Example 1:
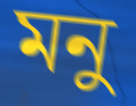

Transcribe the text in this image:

মনু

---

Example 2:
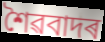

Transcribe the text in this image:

শৈৱবাদৰ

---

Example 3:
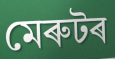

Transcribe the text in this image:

মেৰুটৰ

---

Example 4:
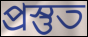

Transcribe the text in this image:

প্ৰস্তুত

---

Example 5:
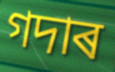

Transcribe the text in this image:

গদাৰ